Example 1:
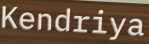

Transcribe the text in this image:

Kendriya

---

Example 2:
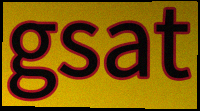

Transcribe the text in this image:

gsat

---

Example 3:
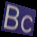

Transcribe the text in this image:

Bc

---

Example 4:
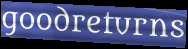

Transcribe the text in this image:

goodreturns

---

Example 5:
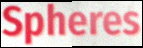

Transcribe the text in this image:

Spheres